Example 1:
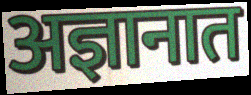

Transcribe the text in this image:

अज्ञानात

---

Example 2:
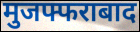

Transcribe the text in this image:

मुजफ्फराबाद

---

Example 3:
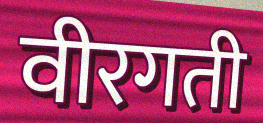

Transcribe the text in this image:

वीरगती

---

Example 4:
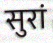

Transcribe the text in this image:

सुरां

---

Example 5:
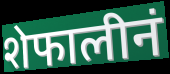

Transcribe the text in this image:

शेफालीनं